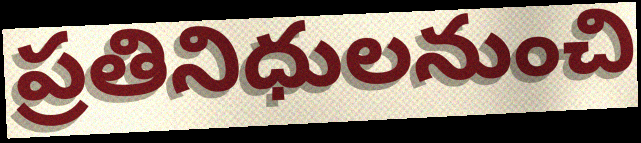
ప్రతినిధులనుంచి